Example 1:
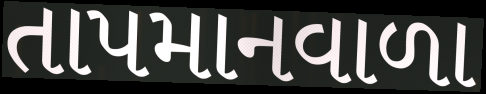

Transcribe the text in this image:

તાપમાનવાળા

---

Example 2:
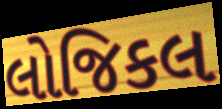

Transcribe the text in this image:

લોજિકલ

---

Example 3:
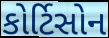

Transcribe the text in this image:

કોર્ટિસોન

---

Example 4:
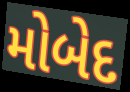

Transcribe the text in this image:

મોબેદ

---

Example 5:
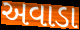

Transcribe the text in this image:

અવાડા